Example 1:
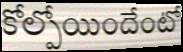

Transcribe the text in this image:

కోల్పోయిందేంటో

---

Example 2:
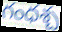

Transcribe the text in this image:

గంధశ్చ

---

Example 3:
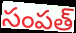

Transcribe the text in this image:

సంపత్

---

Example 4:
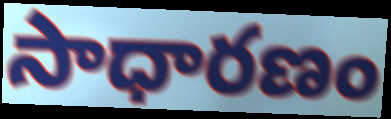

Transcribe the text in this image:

సాధారణం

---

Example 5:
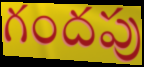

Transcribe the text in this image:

గందపు